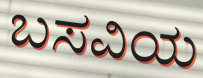
ಬಸವಿಯ